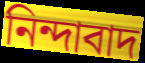
নিন্দাবাদ